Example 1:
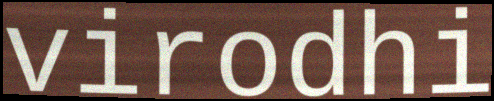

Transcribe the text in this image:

virodhi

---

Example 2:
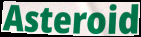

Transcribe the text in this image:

Asteroid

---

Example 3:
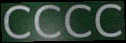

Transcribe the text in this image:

CCCC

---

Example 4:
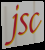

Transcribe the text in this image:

jsc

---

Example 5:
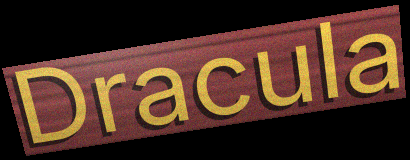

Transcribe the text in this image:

Dracula